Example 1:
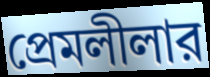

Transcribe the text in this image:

প্রেমলীলার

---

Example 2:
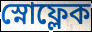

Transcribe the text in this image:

স্নোফ্লেক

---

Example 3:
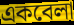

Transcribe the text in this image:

একবেলা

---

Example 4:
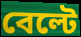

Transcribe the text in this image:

বেল্টে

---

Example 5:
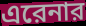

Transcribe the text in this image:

এরেনার